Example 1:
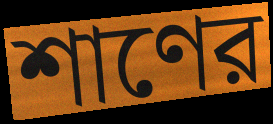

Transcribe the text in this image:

শাণের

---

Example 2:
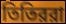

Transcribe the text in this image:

তিতিররা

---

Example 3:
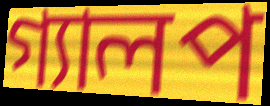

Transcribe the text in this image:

গ্যালপ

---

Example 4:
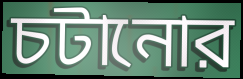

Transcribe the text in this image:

চটানোর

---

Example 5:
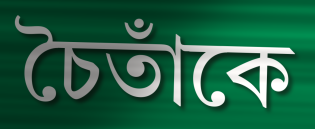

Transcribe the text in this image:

চৈতাঁকে